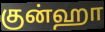
குன்ஹா